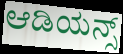
ಆಡಿಯನ್ಸ್